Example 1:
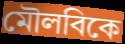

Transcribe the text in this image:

মৌলবিকে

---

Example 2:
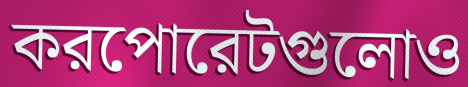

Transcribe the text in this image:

করপোরেটগুলোও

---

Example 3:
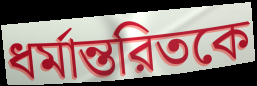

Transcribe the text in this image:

ধর্মান্তরিতকে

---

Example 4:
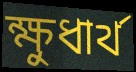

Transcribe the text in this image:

ক্ষুধার্থ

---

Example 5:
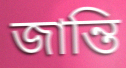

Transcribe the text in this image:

জান্তি